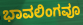
ಭಾವಲಿಂಗವೂ